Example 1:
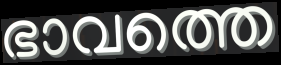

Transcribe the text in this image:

ഭാവത്തെ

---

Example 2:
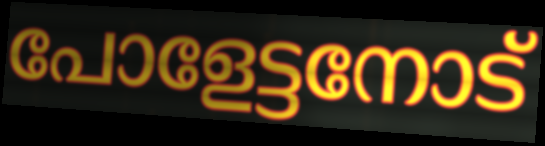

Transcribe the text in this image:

പോളേട്ടനോട്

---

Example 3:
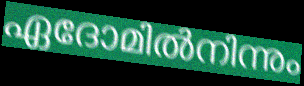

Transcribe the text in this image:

ഏദോമിൽനിന്നും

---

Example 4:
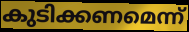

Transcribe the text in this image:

കുടിക്കണമെന്ന്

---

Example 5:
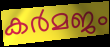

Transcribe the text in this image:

കർമജം